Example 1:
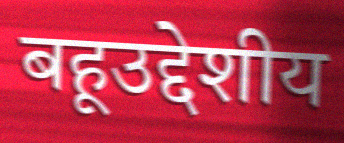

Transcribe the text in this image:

बहूउद्देशीय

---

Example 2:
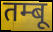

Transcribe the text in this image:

तम्बू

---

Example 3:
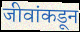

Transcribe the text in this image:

जीवांकडून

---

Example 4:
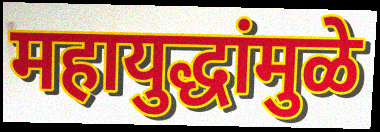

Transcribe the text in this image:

महायुद्धांमुळे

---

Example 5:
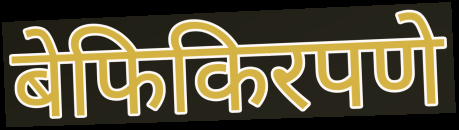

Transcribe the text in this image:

बेफिकिरपणे